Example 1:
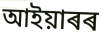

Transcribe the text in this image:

আইয়াৰৰ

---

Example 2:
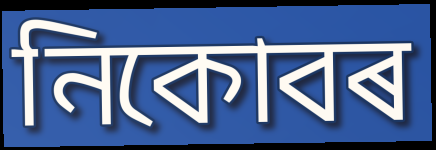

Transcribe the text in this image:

নিকোবৰ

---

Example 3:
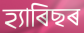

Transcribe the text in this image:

হ্যাৰিছৰ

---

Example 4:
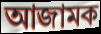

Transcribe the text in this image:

আজামক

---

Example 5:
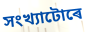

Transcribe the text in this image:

সংখ্যাটোৰে